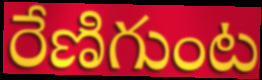
రేణిగుంట